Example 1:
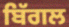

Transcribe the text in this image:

ਬਿੱਗਲ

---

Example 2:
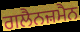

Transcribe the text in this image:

ਗਲੈਨਜ਼ਮੈਨ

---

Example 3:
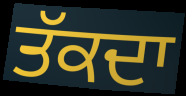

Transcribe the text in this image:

ਤੱਕਦਾ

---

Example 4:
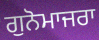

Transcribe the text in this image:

ਗੁਨੋਮਾਜਰਾ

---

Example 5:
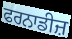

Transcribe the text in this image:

ਫਰਨਾਡੀਜ਼